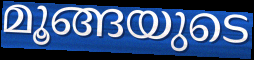
മൂങ്ങയുടെ